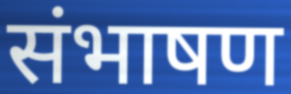
संभाषण